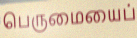
பெருமையைப்